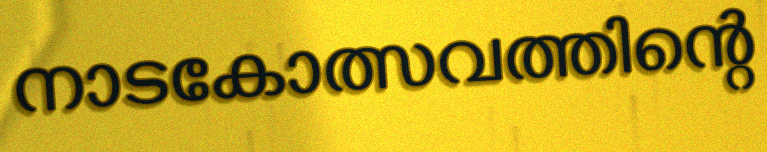
നാടകോത്സവത്തിന്റെ